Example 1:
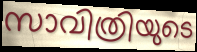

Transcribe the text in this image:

സാവിത്രിയുടെ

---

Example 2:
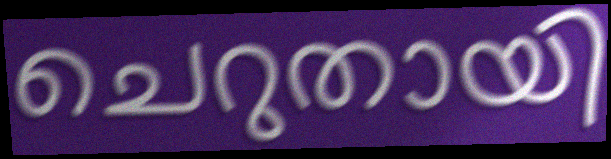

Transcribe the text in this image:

ചെറുതായി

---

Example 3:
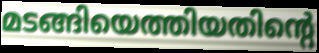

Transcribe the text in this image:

മടങ്ങിയെത്തിയതിന്റെ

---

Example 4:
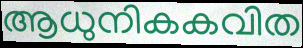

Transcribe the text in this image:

ആധുനികകവിത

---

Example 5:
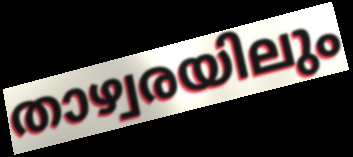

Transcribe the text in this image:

താഴ്വരയിലും